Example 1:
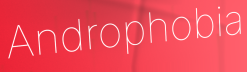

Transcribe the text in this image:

Androphobia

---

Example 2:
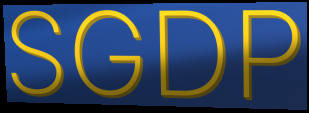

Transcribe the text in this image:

SGDP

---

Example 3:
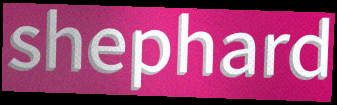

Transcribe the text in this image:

shephard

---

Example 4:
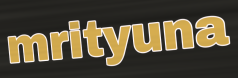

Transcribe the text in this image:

mrityuna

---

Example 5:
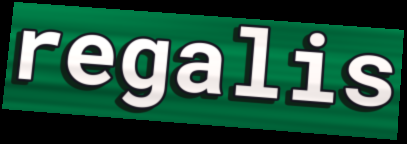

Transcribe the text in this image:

regalis